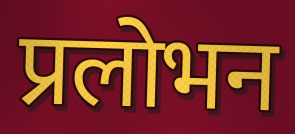
प्रलोभन